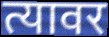
त्यावर